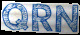
QRN